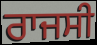
ਰਾਜਸੀ